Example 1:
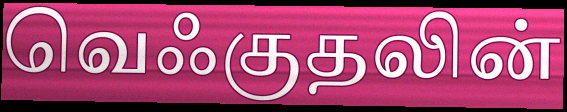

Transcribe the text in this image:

வெஃகுதலின்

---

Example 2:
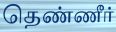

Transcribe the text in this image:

தெண்ணீர்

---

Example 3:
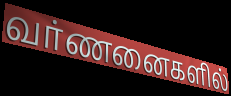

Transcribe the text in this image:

வர்ணனைகளில்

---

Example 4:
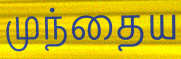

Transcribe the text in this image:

முந்தைய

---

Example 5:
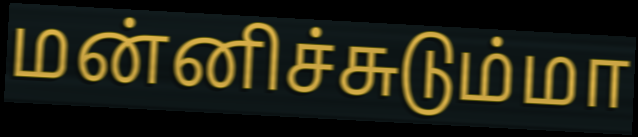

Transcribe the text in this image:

மன்னிச்சுடும்மா